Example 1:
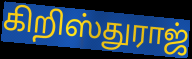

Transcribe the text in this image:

கிறிஸ்துராஜ்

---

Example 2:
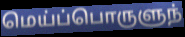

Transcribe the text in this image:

மெய்ப்பொருளுந்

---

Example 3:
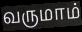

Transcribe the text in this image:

வருமாம்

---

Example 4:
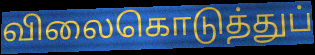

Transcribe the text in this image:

விலைகொடுத்துப்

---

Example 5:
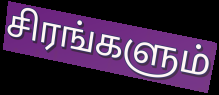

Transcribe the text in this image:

சிரங்களும்